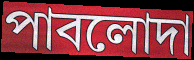
পাবলোদা